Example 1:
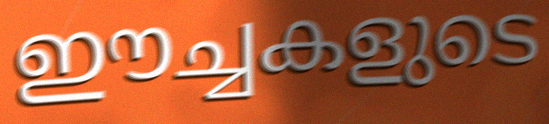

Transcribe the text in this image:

ഈച്ചകളുടെ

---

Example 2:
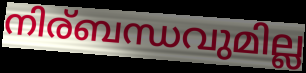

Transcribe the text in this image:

നിര്ബന്ധവുമില്ല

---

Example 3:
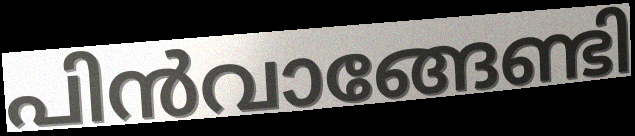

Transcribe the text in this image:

പിൻവാങ്ങേണ്ടി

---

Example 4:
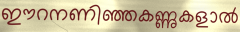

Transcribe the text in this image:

ഈറനണിഞ്ഞകണ്ണുകളാൽ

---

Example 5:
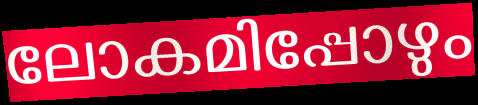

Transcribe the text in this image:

ലോകമിപ്പോഴും